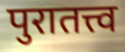
पुरातत्त्व